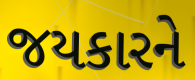
જયકારને